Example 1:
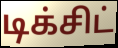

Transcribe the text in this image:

டிக்சிட்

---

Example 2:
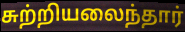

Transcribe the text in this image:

சுற்றியலைந்தார்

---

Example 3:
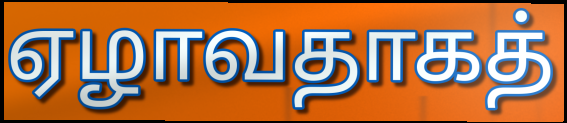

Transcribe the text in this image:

ஏழாவதாகத்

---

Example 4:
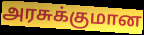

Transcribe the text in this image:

அரசுக்குமான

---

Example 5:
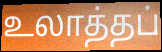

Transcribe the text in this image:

உலாத்தப்